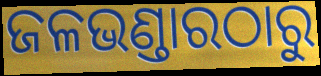
ଜଳଭଣ୍ଡାରଠାରୁ